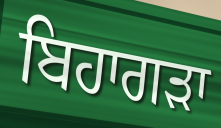
ਬਿਹਾਗੜਾ